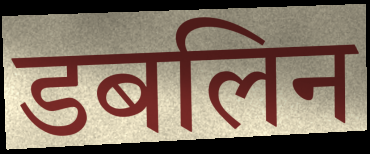
डबलिन